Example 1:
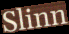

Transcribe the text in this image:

Slinn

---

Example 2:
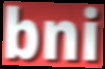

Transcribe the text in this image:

bni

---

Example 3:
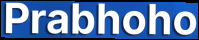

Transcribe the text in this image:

Prabhoho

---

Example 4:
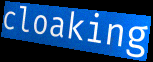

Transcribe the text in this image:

cloaking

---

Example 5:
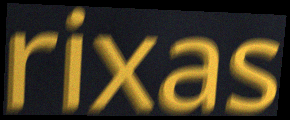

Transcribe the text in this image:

rixas